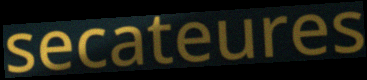
secateures